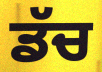
ਡੱਚ